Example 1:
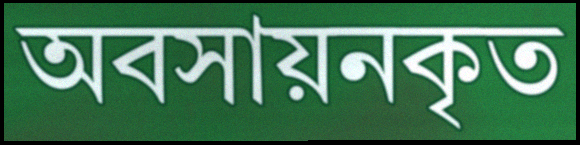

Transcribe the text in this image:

অবসায়নকৃত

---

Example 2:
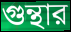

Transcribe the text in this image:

গুন্থার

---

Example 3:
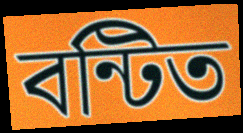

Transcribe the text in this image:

বন্টিত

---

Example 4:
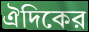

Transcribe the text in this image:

ঐদিকের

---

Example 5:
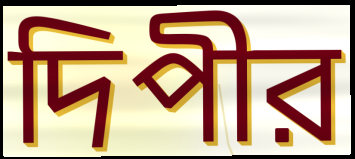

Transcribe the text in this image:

দিপীর